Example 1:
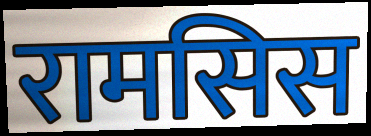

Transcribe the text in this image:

रामसिस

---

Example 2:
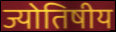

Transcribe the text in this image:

ज्योतिषीय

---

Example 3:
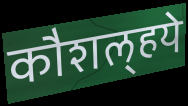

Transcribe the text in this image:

कौशल्हये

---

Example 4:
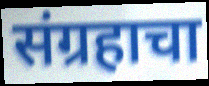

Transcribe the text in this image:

संग्रहाचा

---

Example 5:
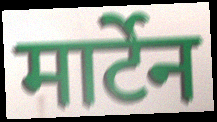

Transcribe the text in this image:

मार्टेन